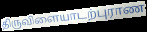
திருவிளையாடற்புராண